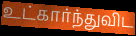
உட்கார்ந்துவிட